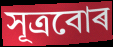
সূত্ৰবোৰ